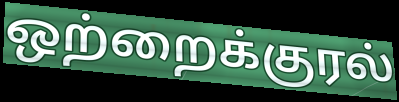
ஒற்றைக்குரல்